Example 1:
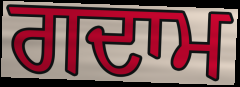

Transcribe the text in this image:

ਗਦਾਮ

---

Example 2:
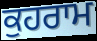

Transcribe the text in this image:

ਕੁਹਰਾਮ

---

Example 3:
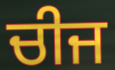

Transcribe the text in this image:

ਚੀਜ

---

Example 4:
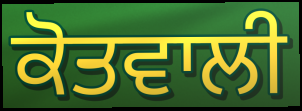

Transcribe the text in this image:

ਕੋਤਵਾਲੀ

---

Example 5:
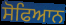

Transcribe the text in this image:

ਸੋਫਿਆਨ